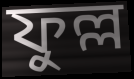
ফুল্ল